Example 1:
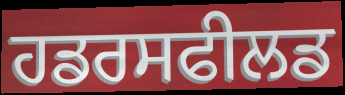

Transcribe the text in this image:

ਹਡਰਸਫੀਲਡ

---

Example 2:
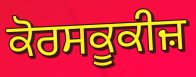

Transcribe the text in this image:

ਕੋਰਸਕੂਕੀਜ਼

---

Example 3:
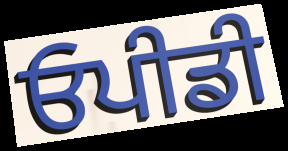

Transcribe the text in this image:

ਓਪੀਡੀ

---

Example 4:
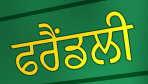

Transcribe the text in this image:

ਫਰੈਂਡਲੀ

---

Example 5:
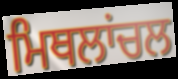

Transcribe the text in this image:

ਮਿਥਲਾਂਚਲ